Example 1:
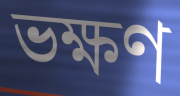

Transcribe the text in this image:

ভক্ষণ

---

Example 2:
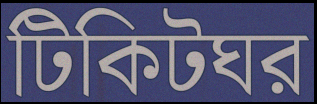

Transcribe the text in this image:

টিকিটঘর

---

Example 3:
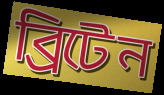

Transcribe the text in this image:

ব্রিটেন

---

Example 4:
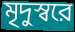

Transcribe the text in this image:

মৃদুস্বরে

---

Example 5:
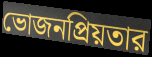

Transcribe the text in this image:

ভোজনপ্রিয়তার